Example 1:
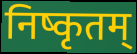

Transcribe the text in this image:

निष्कृतम्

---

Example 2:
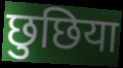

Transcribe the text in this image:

छुछिया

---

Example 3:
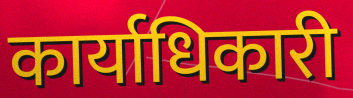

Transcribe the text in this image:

कार्याधिकारी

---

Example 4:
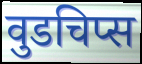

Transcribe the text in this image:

वुडचिप्स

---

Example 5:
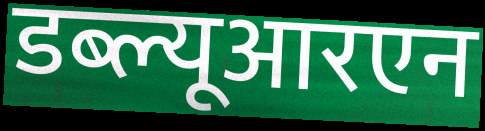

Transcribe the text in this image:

डब्ल्यूआरएन